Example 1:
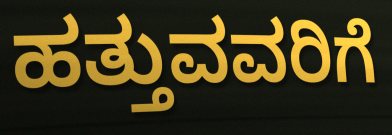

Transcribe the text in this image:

ಹತ್ತುವವರಿಗೆ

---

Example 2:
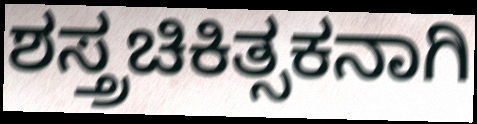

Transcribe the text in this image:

ಶಸ್ತ್ರಚಿಕಿತ್ಸಕನಾಗಿ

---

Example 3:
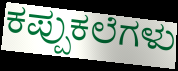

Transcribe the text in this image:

ಕಪ್ಪುಕಲೆಗಳು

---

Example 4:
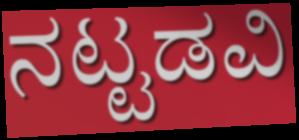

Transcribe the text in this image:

ನಟ್ಟಡವಿ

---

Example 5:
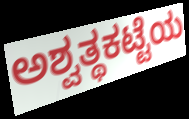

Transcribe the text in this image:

ಅಶ್ವತ್ಥಕಟ್ಟೆಯ